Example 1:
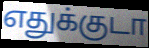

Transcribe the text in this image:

எதுக்குடா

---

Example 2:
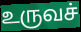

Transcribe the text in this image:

உருவச்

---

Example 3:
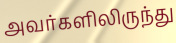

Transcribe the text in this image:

அவர்களிலிருந்து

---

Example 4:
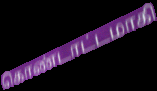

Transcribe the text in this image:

கொண்டாட்டமாகி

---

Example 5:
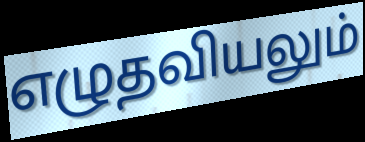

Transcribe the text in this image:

எழுதவியலும்